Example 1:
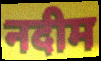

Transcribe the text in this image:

नदीम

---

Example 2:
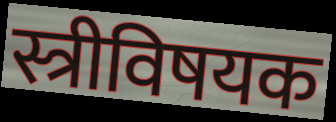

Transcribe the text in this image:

स्त्रीविषयक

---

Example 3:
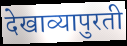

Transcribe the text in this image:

देखाव्यापुरती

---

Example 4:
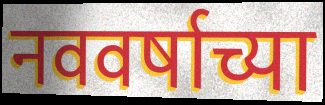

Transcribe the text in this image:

नववर्षाच्या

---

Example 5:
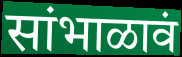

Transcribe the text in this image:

सांभाळावं